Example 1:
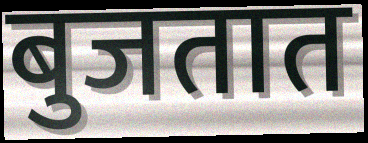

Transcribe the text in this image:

बुजतात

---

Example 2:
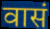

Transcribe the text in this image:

वासं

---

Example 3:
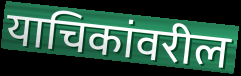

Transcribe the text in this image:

याचिकांवरील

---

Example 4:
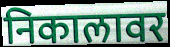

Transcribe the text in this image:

निकालावर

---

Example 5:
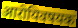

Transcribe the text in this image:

आरोयिवषयक